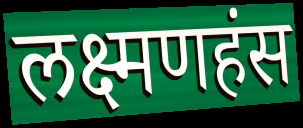
लक्ष्मणहंस